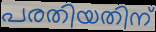
പരതിയതിന്